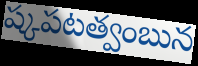
ష్కపటత్వంబున